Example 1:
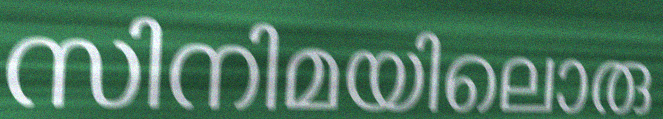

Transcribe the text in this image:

സിനിമയിലൊരു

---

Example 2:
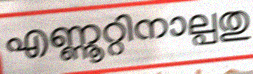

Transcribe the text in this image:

എണ്ണൂറ്റിനാല്പതു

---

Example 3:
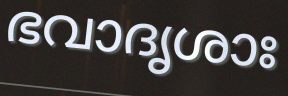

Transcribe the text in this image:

ഭവാദൃശാഃ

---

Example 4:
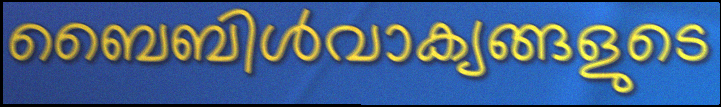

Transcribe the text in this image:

ബൈബിൾവാക്യങ്ങളുടെ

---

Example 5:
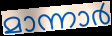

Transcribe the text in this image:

മാന്നാർ